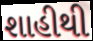
શાહીથી